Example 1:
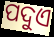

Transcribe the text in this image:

ପଦୁଏ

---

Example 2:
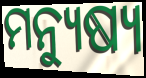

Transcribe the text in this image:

ମନ୍ୟୁଷ୍ୟ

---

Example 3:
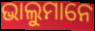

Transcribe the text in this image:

ଭାଲୁମାନେ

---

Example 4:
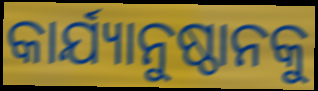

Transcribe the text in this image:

କାର୍ଯ୍ୟାନୁଷ୍ଠାନକୁ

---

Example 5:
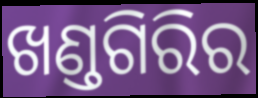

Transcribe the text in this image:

ଖଣ୍ଡଗିରିର